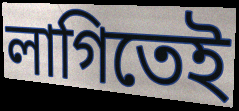
লাগিতেই